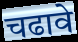
चढावे